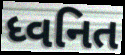
ધ્વનિત